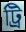
ট্রি